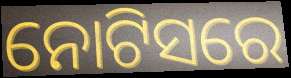
ନୋଟିସରେ